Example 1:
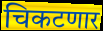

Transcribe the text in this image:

चिकटणार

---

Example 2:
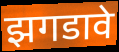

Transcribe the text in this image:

झगडावे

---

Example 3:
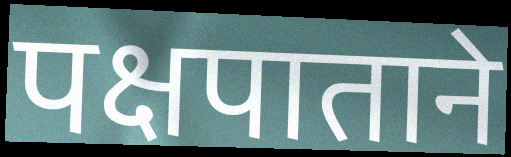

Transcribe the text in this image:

पक्षपाताने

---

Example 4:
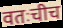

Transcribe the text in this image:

वतःचीच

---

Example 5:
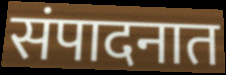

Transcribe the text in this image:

संपादनात